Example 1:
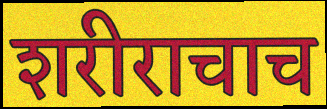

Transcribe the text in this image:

शरीराचाच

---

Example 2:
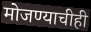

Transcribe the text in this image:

मोजण्याचीही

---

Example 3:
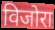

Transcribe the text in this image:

विजोरा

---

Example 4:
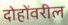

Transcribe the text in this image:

दोहोंवरील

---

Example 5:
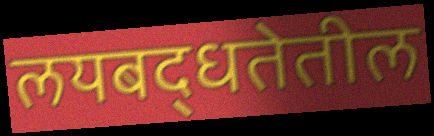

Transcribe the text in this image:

लयबद्धतेतील